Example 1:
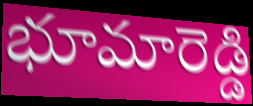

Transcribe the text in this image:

భూమారెడ్డి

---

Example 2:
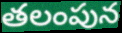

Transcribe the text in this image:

తలంపున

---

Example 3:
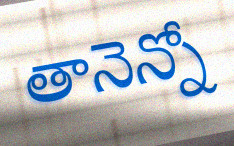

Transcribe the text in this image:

తానెన్నో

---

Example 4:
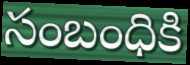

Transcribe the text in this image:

సంబంధికి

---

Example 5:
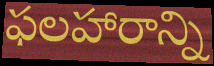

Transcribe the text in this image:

ఫలహారాన్ని